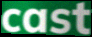
cast